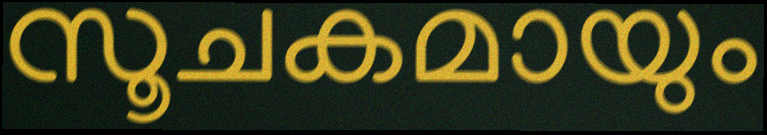
സൂചകമായും